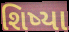
શિષ્યા